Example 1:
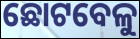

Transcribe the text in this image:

ଛୋଟବେଳୁ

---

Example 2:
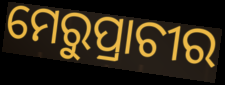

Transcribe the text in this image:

ମେରୁପ୍ରାଚୀର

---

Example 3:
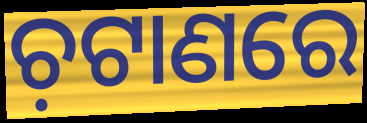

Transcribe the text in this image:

ଚ଼ଟାଣରେ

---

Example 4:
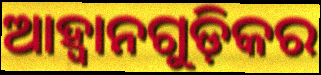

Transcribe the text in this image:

ଆହ୍ଵାନଗୁଡ଼ିକର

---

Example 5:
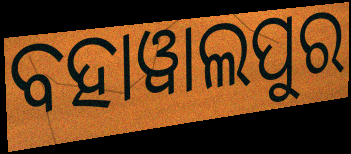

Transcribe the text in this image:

ବହାୱାଲପୁର